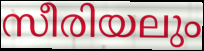
സീരിയലും